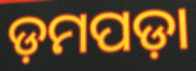
ଡ଼ମପଡ଼ା